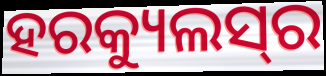
ହରକ୍ୟୁଲସ୍‍ର